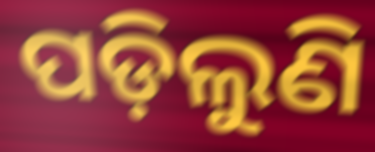
ପଡ଼ିଲୁଣି